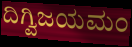
ದಿಗ್ವಿಜಯಮಂ